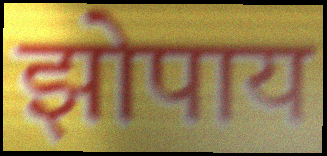
झोपाय